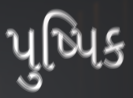
પુષ્પિક